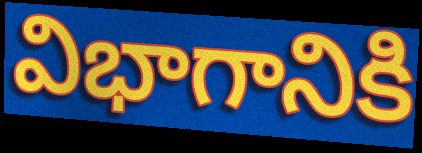
విభాగానికి